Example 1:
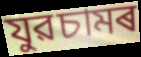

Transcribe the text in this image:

যুৱচামৰ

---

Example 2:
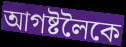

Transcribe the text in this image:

আগষ্টলৈকে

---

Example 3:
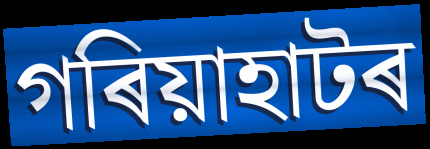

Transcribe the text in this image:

গৰিয়াহাটৰ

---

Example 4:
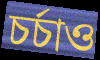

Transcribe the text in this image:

চৰ্চাও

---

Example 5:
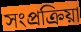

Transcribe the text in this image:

সংপ্ৰক্ৰিয়া